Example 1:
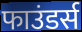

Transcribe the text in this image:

फाउंडर्स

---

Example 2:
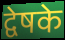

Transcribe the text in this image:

द्वेषके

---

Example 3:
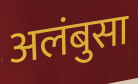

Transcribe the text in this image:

अलंबुसा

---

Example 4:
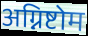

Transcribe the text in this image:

अग्निष्टोम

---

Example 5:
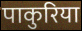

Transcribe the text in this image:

पाकुरिया